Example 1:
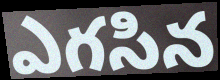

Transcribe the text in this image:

ఎగసిన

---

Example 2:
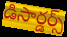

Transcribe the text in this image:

డిసార్డర్స్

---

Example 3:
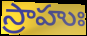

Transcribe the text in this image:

స్రాహుః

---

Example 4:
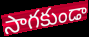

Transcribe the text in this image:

సాగకుండా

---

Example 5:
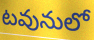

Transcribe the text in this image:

టవునులో